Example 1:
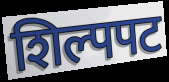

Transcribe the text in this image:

शिल्पपट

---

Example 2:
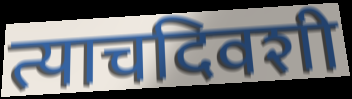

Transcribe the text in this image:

त्याचदिवशी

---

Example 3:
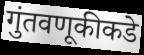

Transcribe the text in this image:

गुंतवणूकीकडे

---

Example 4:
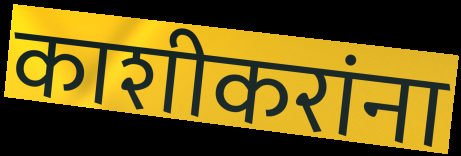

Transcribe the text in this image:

काशीकरांना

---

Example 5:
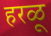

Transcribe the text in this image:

हरळू